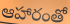
ఆహారంతో